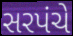
સરપંચે